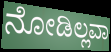
ನೋಡಿಲ್ಲವಾ